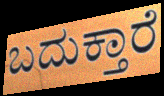
ಬದುಕ್ತಾರೆ